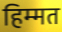
हिम्मत